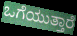
ಒಗೆಯುತ್ತಾರೆ